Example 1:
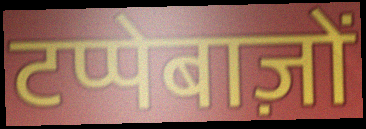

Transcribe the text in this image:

टप्पेबाज़ों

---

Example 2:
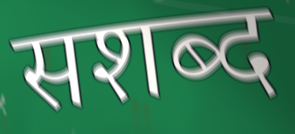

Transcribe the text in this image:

सशब्द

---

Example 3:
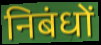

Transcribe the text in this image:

निबंधों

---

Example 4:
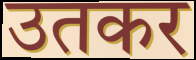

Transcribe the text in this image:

उतकर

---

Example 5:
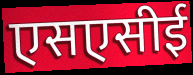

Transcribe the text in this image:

एसएसीई